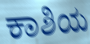
ಕಾಶಿಯ